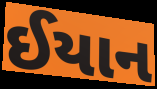
ઈયાન